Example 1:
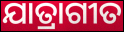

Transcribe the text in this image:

ଯାତ୍ରାଗୀତ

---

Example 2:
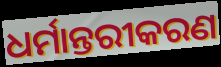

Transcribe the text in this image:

ଧର୍ମାନ୍ତରୀକରଣ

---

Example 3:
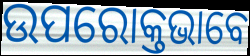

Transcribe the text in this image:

ଉପରୋକ୍ତଭାବେ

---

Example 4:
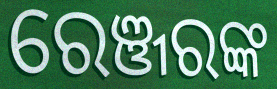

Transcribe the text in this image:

ରେଞ୍ଜରଙ୍କ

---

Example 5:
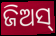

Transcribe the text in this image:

ଜିଅସ୍